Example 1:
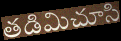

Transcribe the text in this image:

తడిమిచూసి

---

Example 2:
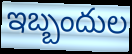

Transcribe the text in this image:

ఇబ్బందుల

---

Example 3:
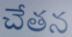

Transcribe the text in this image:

చేతన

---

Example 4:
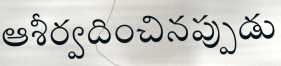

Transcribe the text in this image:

ఆశీర్వదించినప్పుడు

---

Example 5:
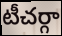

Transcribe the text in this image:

టీచర్గా